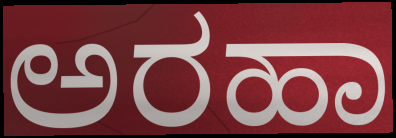
ಅರಹಾ